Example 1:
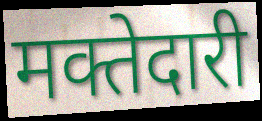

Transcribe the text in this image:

मक्तेदारी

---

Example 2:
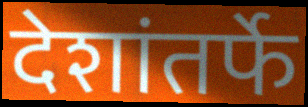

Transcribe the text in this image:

देशांतर्फे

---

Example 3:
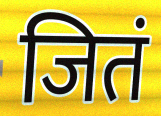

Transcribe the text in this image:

जितं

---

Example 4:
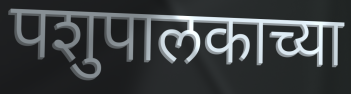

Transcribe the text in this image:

पशुपालकाच्या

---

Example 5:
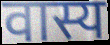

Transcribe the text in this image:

वास्य